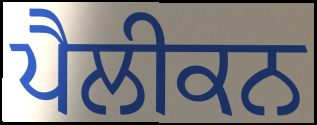
ਪੈਲੀਕਨ